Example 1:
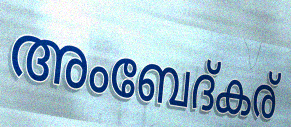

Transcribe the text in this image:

അംബേദ്കര്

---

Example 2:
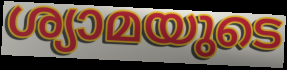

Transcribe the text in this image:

ശ്യാമയുടെ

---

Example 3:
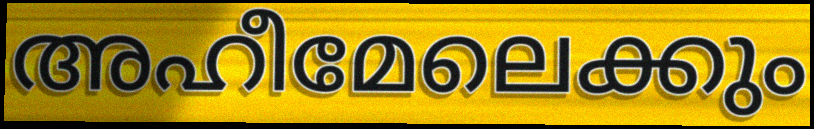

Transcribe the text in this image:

അഹീമേലെക്കും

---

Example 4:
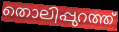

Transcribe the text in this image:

തൊലിപ്പുറത്ത്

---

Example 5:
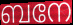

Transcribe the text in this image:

ബനേ